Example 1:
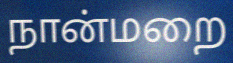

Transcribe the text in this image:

நான்மறை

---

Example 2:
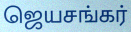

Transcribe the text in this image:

ஜெயசங்கர்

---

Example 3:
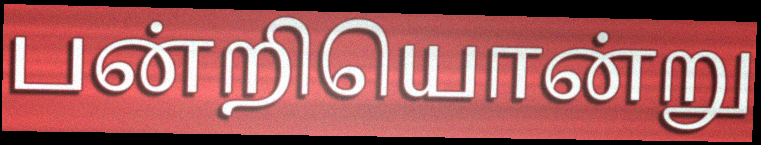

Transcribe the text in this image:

பன்றியொன்று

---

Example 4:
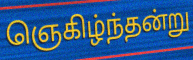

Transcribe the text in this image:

ஞெகிழ்ந்தன்று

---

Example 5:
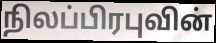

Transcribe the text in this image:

நிலப்பிரபுவின்